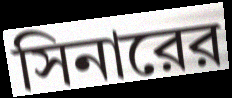
সিনারের